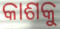
କାଶକୁ